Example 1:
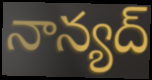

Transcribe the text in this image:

నాన్యద్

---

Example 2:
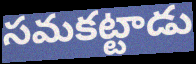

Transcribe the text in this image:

సమకట్టాడు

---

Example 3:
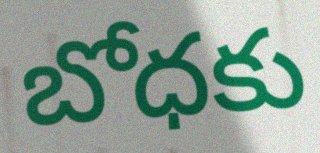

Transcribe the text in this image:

బోధకు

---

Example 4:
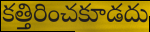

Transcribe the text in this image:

కత్తిరించకూడదు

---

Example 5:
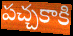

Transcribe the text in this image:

పచ్చకాకి